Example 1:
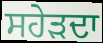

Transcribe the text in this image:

ਸਹੇੜਦਾ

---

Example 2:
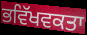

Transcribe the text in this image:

ਭਵਿੱਖਵਕਤਾ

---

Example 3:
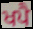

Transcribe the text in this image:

ਖਪੈ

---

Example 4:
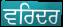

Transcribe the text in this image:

ਵਰਿਦਰ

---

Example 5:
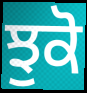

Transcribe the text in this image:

ਝੁਕੋ